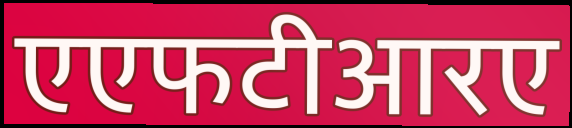
एएफटीआरए